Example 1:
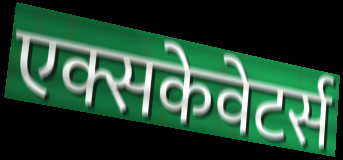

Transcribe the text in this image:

एक्सकेवेटर्स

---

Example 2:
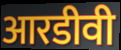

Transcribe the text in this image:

आरडीवी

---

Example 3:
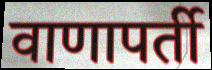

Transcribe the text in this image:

वाणापर्ती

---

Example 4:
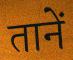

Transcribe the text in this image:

तानें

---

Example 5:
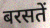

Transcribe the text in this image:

बरसतें